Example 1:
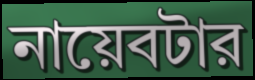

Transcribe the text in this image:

নায়েবটার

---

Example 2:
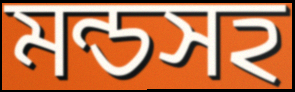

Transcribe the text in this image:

মন্ডসহ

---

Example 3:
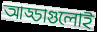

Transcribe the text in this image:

আড্ডাগুলোই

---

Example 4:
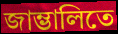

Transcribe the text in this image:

জাম্ভালিতে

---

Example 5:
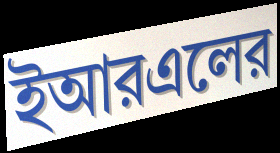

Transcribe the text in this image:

ইআরএলের